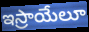
ఇస్రాయేలూ